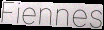
Fiennes